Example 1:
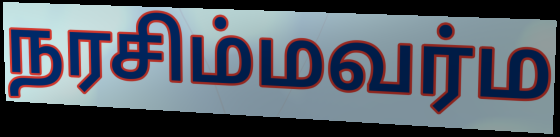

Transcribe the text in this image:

நரசிம்மவர்ம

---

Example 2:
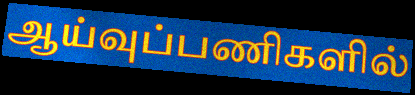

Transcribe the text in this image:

ஆய்வுப்பணிகளில்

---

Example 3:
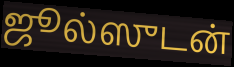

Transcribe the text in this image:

ஜூல்ஸுடன்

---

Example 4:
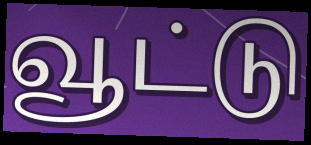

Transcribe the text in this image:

வூட்டு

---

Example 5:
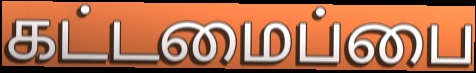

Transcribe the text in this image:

கட்டமைப்பை